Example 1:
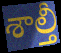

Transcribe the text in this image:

శాల్తీ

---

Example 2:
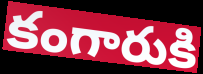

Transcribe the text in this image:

కంగారుకి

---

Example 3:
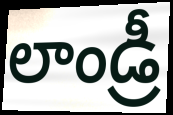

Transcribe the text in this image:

లాండ్రీ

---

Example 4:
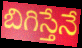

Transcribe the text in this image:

బిగిస్తేనే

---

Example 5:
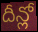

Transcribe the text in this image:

దీన్లో